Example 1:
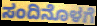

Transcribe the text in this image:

ಸಂದಿನೊಳಗೆ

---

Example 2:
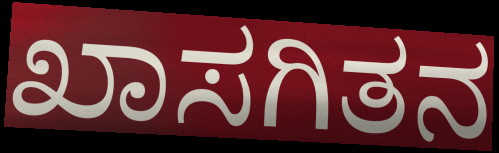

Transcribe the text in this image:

ಖಾಸಗಿತನ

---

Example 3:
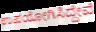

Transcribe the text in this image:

ಉಪಯೋಗಿಸಿದ್ದೇವೆ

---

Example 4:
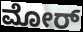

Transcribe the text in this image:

ಮೋರ್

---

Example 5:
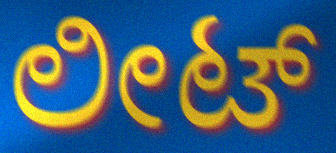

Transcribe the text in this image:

ಲೀಟ್